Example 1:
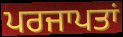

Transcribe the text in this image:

ਪਰਜਾਪਤਾਂ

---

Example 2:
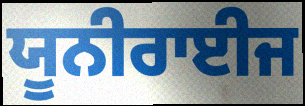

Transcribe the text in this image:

ਯੂਨੀਰਾਈਜ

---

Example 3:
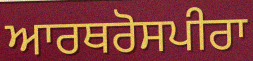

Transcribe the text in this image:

ਆਰਥਰੋਸਪੀਰਾ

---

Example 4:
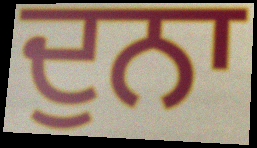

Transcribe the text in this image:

ਦੁਨਾ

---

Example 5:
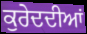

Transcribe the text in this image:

ਕੁਰੇਦਦੀਆਂ